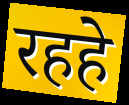
रहहे